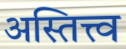
अस्तित्त्व